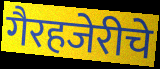
गैरहजेरीचे